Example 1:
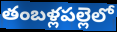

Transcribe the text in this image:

తంబళ్లపల్లెలో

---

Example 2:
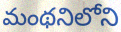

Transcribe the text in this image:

మంథనిలోని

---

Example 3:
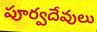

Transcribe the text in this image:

పూర్వదేవులు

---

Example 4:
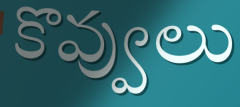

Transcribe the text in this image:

కొవ్వులు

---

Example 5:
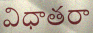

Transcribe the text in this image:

విధాతరా